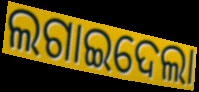
ଲଗାଇଦେଲା